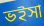
ভইসা